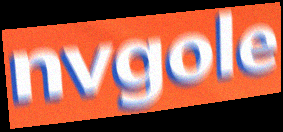
nvgole